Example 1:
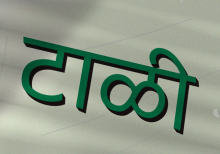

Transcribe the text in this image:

टाळी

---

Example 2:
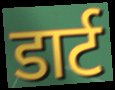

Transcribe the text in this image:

डार्ट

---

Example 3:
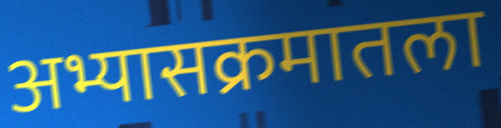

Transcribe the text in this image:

अभ्यासक्रमातला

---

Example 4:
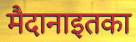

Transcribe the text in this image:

मैदानाइतका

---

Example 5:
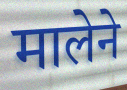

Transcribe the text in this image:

मालेने